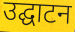
उद्घाटन